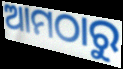
ଆମଠାରୁ